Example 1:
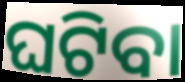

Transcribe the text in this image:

ଘଟିବା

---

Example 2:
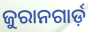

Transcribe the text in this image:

ଜୁରାନଗାର୍ଡ଼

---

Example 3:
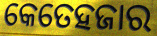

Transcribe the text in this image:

କେତେହଜାର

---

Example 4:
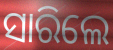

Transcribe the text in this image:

ସାରିଲେ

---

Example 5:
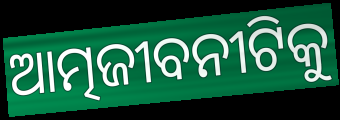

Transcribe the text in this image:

ଆତ୍ମଜୀବନୀଟିକୁ